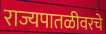
राज्यपातळीवरचे